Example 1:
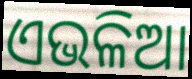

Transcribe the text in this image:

ଏଭଳିଆ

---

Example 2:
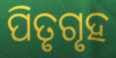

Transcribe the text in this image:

ପିତୃଗୃହ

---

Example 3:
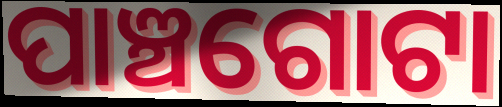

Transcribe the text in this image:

ପାଞ୍ଚଗୋଟା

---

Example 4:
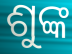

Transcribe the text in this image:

ଶୁଙ୍କ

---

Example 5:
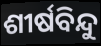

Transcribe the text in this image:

ଶୀର୍ଷବିନ୍ଦୁ